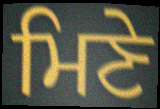
ਮਿਣੇ